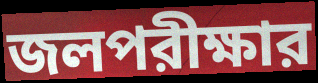
জলপরীক্ষার